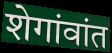
शेगांवांत